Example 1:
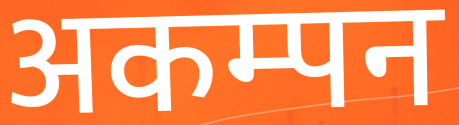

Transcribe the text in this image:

अकम्पन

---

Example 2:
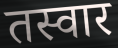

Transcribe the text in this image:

तस्वार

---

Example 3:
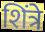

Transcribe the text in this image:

शिंत्रे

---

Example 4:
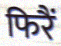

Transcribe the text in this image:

फिरैं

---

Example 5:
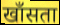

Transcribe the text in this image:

खाँसता